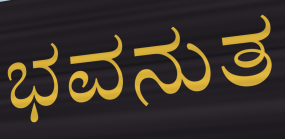
ಭವನುತ